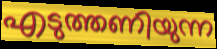
എടുത്തണിയുന്ന